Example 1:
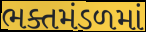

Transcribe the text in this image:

ભક્તમંડળમાં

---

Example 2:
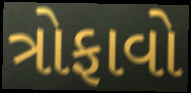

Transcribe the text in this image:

ત્રોફાવો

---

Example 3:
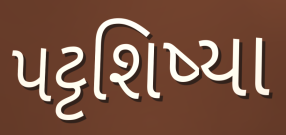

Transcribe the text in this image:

પટ્ટશિષ્યા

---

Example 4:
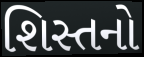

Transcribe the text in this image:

શિસ્તનો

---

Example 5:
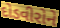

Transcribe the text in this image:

દોડવીરોને